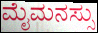
ಮೈಮನಸ್ಸು